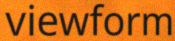
viewform